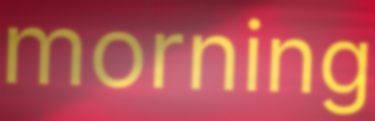
morning